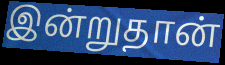
இன்றுதான்